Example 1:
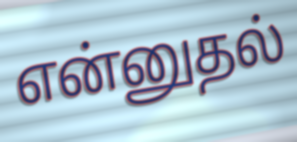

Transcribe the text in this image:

என்னுதல்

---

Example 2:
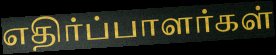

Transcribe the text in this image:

எதிர்ப்பாளர்கள்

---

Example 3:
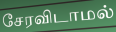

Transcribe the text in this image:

சேரவிடாமல்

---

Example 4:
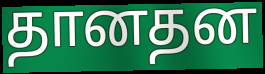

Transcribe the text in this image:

தானதன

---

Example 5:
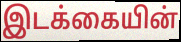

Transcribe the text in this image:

இடக்கையின்